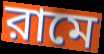
রামে